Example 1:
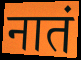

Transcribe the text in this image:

नातं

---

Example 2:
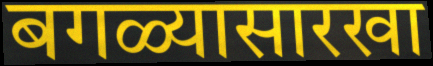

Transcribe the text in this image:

बगळ्यासारखा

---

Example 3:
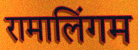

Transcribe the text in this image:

रामालिंगम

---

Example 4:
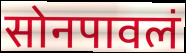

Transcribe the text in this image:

सोनपावलं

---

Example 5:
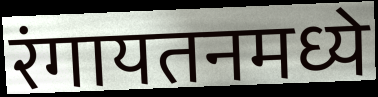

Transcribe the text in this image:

रंगायतनमध्ये